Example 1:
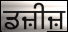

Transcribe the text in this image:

ਡਜ਼ੀਜ਼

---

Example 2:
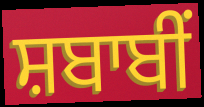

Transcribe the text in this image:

ਸ਼ਬਾਬੀਂ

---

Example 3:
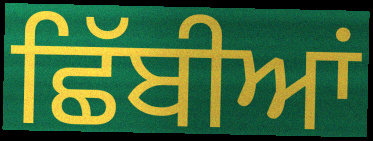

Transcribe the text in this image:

ਛਿੱਬੀਆਂ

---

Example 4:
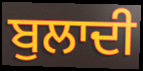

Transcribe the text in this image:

ਬੁਲਾਦੀ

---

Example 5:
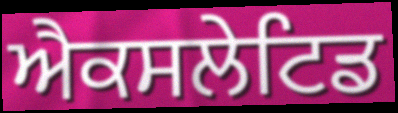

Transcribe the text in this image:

ਐਕਸਲੇਟਿਡ